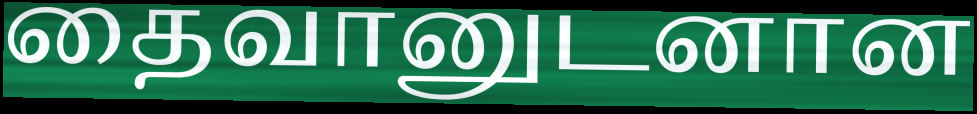
தைவானுடனான